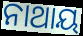
ନାଥାୟ